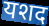
यशद